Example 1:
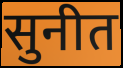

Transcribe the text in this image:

सुनीत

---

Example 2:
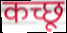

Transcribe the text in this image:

कच्छू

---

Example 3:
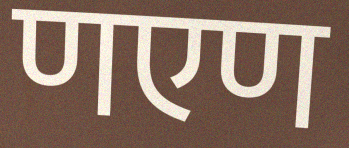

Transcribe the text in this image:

णएण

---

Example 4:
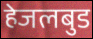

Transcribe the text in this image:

हेजलबुड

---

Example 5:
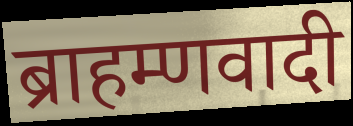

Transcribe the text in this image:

ब्राहम्णवादी